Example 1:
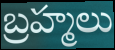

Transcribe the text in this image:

బ్రహ్మలు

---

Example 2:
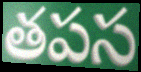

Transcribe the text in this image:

తపస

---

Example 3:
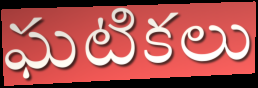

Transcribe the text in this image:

ఘటికలు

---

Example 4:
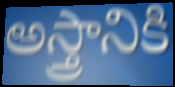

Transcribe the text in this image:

అస్త్రానికి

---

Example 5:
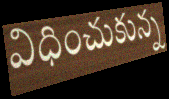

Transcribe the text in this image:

విధించుకున్న